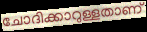
ചോദിക്കാറുള്ളതാണ്